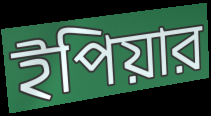
ইপিয়ার